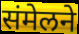
संमेलने